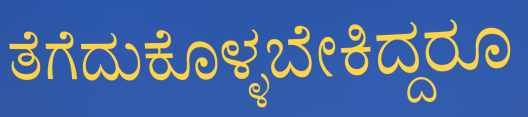
ತೆಗೆದುಕೊಳ್ಳಬೇಕಿದ್ದರೂ